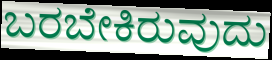
ಬರಬೇಕಿರುವುದು